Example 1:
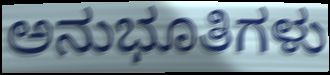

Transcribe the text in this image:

ಅನುಭೂತಿಗಳು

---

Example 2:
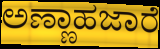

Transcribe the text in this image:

ಅಣ್ಣಾಹಜಾರೆ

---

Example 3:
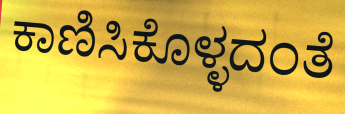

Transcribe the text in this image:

ಕಾಣಿಸಿಕೊಳ್ಳದಂತೆ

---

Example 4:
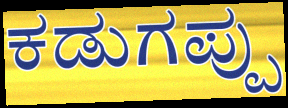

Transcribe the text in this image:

ಕಡುಗಪ್ಪು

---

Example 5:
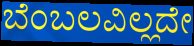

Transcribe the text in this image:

ಬೆಂಬಲವಿಲ್ಲದೇ